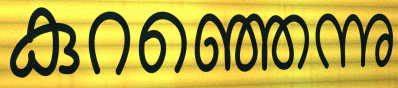
കുറഞ്ഞെന്നു